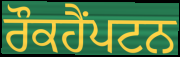
ਰੌਕਹੈਂਪਟਨ